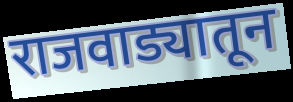
राजवाड्यातून